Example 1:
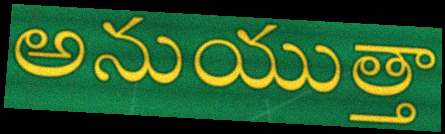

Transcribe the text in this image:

అనుయుత్తా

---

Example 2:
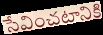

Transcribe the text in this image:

సేవించటానికి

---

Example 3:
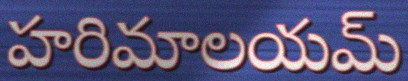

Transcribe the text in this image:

హరిమాలయమ్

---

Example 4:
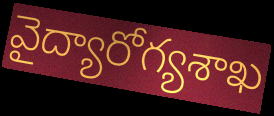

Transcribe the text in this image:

వైద్యారోగ్యశాఖ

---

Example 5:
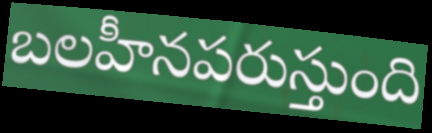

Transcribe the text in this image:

బలహీనపరుస్తుంది